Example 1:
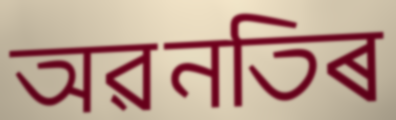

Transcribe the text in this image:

অৱনতিৰ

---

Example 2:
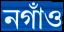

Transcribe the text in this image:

নগাঁও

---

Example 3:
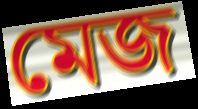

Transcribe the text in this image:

মেজ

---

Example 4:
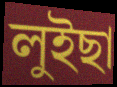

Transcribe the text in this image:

লুইছা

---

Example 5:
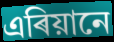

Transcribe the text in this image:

এৰিয়ানে